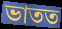
ভাতত